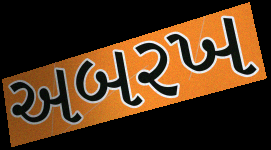
અબરખ